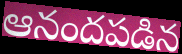
ఆనందపడిన